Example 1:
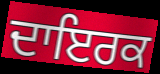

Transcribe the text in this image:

ਦਾਇਰਕ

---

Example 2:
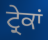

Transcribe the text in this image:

ਟ੍ਰੇਕਾਂ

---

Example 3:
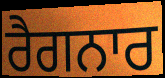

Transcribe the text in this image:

ਰੈਗਨਾਰ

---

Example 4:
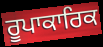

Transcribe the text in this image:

ਰੂਪਾਕਾਰਿਕ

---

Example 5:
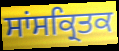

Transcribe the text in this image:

ਸਾਂਸਕ੍ਰਿਤਕ